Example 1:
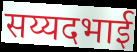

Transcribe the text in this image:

सय्यदभाई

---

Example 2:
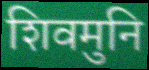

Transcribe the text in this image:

शिवमुनि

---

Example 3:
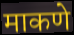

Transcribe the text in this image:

माकणे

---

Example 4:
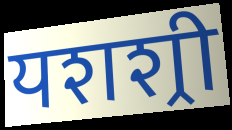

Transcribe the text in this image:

यशश्री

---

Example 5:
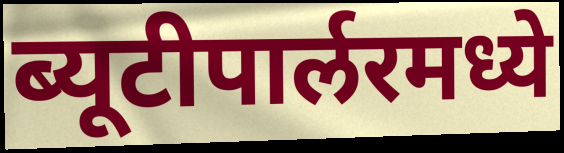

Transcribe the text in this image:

ब्यूटीपार्लरमध्ये